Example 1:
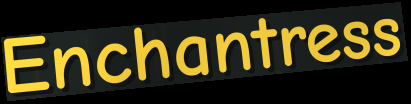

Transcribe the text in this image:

Enchantress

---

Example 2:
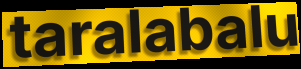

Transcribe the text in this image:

taralabalu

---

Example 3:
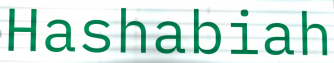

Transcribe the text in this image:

Hashabiah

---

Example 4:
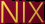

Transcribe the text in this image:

NIX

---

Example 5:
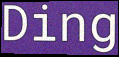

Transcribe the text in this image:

Ding